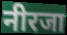
नीरजा